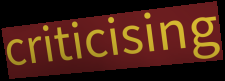
criticising